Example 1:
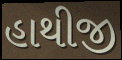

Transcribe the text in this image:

હાથીજી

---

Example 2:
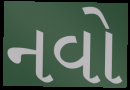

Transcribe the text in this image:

નવો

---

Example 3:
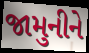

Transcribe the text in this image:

જામુનીને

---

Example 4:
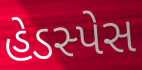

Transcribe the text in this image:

હેડસ્પેસ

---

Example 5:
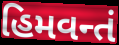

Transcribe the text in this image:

હિમવન્તં